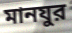
মানযুর